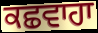
ਕਛਵਾਹਾ